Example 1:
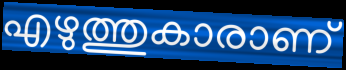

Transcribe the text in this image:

എഴുത്തുകാരാണ്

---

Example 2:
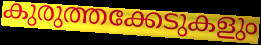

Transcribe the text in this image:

കുരുത്തക്കേടുകളും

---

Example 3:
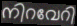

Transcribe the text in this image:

നിറവേറി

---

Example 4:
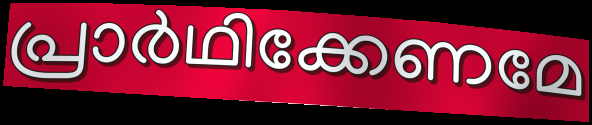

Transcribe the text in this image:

പ്രാർഥിക്കേണമേ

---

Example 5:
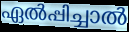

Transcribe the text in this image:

ഏൽപ്പിച്ചാൽ